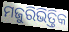
ମଜୁରିଭିତ୍ତିକ